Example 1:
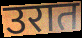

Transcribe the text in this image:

उरात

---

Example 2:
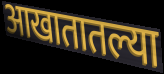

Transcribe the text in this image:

आखातातल्या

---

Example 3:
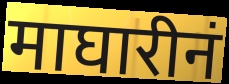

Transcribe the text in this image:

माघारीनं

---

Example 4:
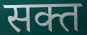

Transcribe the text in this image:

सक्त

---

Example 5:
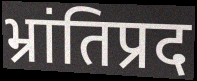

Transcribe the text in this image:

भ्रांतिप्रद